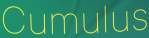
Cumulus